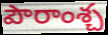
పౌరాంశ్చ